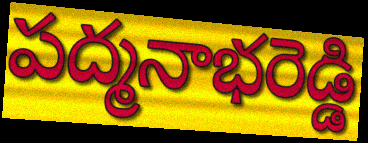
పద్మనాభరెడ్డి